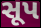
સૂપ